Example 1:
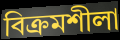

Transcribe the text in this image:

বিক্ৰমশীলা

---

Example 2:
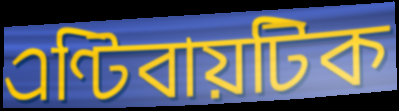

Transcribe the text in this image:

এণ্টিবায়টিক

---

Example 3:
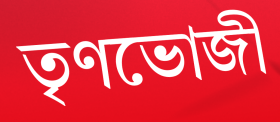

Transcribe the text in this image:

তৃণভোজী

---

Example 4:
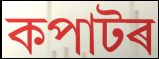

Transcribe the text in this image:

কপাটৰ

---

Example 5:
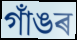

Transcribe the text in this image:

গাঁঙৰ